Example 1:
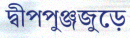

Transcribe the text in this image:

দ্বীপপুঞ্জজুড়ে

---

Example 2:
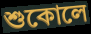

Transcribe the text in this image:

শুকোলে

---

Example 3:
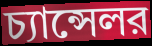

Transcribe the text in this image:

চ্যান্সেলর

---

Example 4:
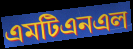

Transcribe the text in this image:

এমটিএনএল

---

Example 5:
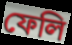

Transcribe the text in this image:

ফেলি